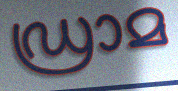
ഡ്രാമ